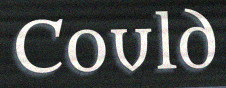
Could